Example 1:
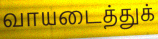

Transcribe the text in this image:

வாயடைத்துக்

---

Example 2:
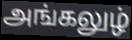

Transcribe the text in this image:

அங்கலுழ்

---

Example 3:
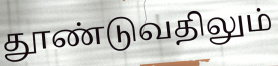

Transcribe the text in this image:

தூண்டுவதிலும்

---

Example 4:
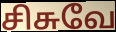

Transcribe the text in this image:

சிசுவே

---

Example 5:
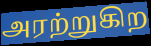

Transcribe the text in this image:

அரற்றுகிற